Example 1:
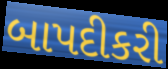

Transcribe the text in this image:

બાપદીકરી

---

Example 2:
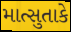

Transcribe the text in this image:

માત્સુતાકે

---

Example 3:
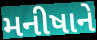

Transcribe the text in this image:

મનીષાને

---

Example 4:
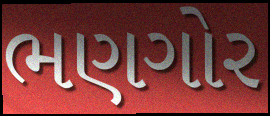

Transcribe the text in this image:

ભણગોર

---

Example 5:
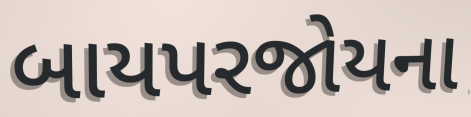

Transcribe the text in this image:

બાયપરજોયના